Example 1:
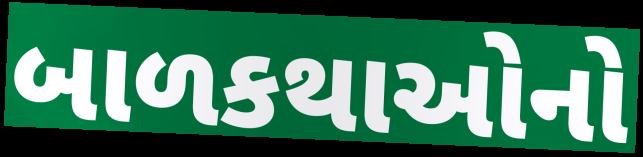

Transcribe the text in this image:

બાળકથાઓનો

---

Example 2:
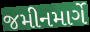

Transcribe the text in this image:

જમીનમાર્ગે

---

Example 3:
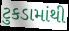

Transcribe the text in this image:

ટુકડામાંથી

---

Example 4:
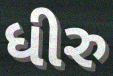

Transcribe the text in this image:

ધીરુ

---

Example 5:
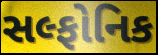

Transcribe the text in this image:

સલ્ફોનિક